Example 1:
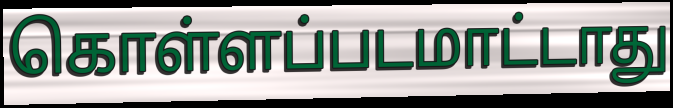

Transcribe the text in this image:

கொள்ளப்படமாட்டாது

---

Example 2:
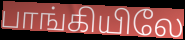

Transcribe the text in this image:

பாங்கியிலே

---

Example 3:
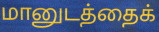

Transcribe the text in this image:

மானுடத்தைக்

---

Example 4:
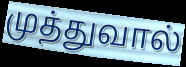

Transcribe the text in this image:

முத்துவால்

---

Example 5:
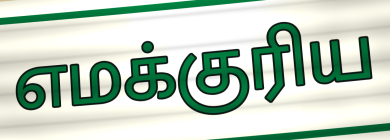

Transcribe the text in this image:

எமக்குரிய